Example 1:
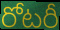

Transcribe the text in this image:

రోటరీ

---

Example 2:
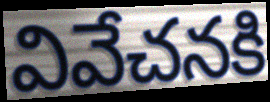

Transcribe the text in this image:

వివేచనకి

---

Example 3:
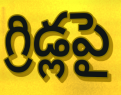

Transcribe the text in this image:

గ్రిడ్లపై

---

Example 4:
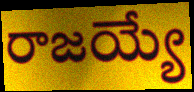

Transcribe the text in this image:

రాజయ్యే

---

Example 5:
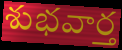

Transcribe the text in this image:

శుభవార్త